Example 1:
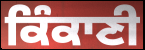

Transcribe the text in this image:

ਕਿੰਕਾਣੀ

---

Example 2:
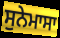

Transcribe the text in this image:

ਸੁਨੇਮਾਸਾ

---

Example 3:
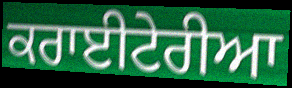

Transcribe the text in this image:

ਕਰਾਈਟੇਰੀਆ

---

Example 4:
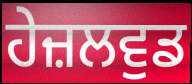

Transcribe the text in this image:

ਹੇਜ਼ਲਵੁਡ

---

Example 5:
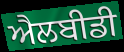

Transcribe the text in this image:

ਐਲਬੀਡੀ